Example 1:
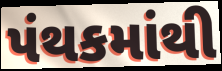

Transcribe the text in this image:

પંથકમાંથી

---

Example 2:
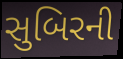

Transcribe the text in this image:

સુબિરની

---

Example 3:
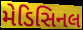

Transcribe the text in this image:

મેડિસિનલ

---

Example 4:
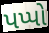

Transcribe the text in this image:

પપ્પો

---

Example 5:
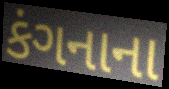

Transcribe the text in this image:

કંગનાના